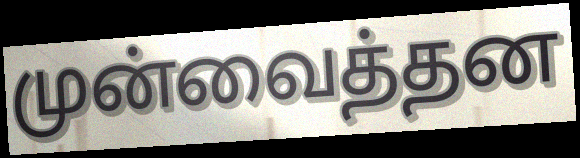
முன்வைத்தன